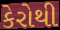
કેરોથી